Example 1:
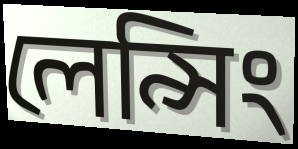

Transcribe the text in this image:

লেন্সিং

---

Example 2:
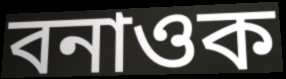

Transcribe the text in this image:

বনাওক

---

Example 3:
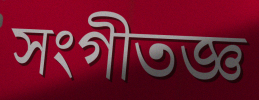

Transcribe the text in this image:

সংগীতজ্ঞ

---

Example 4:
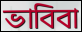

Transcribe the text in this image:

ভাবিবা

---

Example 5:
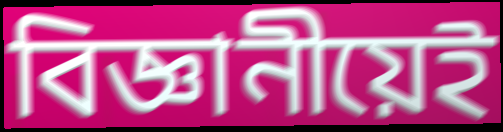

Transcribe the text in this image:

বিজ্ঞানীয়েই